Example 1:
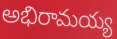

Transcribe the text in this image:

అభిరామయ్య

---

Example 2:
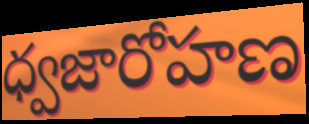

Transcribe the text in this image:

ధ్వజారోహణ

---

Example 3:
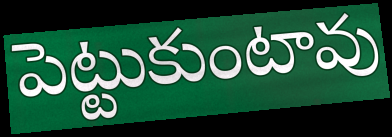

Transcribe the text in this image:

పెట్టుకుంటావు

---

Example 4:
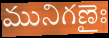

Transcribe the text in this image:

మునిగణైః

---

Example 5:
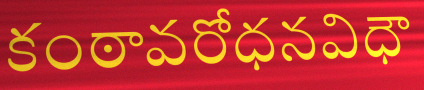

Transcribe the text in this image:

కంఠావరోధనవిధౌ